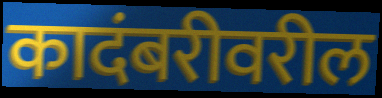
कादंबरीवरील